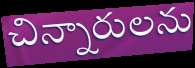
చిన్నారులను